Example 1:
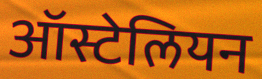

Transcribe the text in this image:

ऑस्टेलियन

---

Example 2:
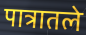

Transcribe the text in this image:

पात्रातले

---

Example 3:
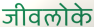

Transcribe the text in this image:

जीवलोके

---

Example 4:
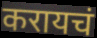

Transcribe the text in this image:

करायचं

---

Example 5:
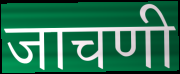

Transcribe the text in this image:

जाचणी